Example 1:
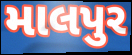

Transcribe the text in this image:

માલપુર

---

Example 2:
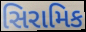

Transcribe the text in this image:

સિરામિક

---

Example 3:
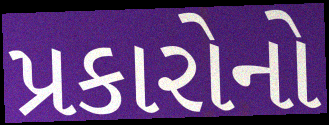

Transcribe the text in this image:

પ્રકારોનો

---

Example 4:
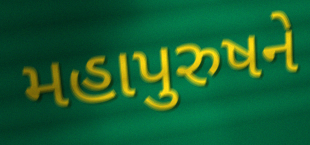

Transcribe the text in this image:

મહાપુરુષને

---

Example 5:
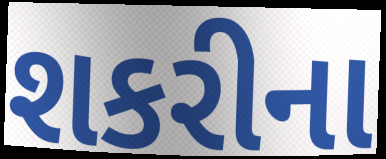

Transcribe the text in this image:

શકરીના